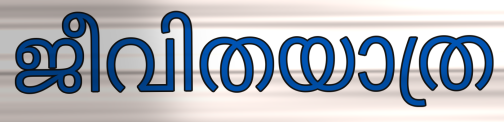
ജീവിതയാത്ര